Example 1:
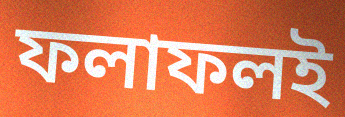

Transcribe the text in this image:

ফলাফলই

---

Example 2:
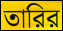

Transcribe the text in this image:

তারির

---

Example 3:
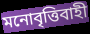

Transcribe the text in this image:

মনোবৃত্তিবাহী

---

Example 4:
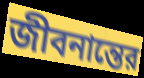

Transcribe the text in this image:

জীবনান্তের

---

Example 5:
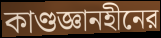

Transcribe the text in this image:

কাণ্ডজ্ঞানহীনের